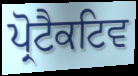
ਪ੍ਰੋਟੈਕਟਿਵ